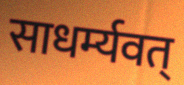
साधर्म्यवत्